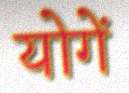
योगें